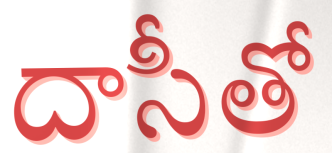
దాసీతో